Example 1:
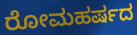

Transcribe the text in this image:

ರೋಮಹರ್ಷದ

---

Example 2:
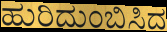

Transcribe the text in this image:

ಹುರಿದುಂಬಿಸಿದ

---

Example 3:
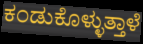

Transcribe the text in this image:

ಕಂಡುಕೊಳ್ಳುತ್ತಾಳೆ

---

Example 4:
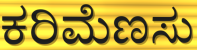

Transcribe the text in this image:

ಕರಿಮೆಣಸು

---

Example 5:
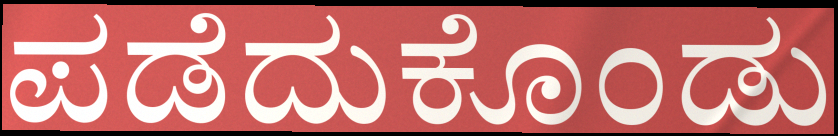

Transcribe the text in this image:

ಪಡೆದುಕೊಂಡು